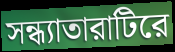
সন্ধ্যাতারাটিরে